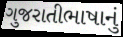
ગુજરાતીભાષાનું